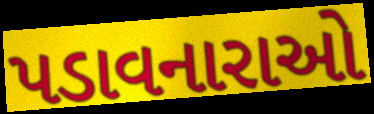
પડાવનારાઓ